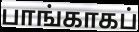
பாங்காகப்